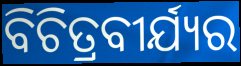
ବିଚିତ୍ରବୀର୍ଯ୍ୟର